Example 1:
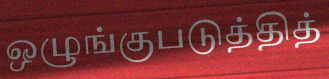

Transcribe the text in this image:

ஒழுங்குபடுத்தித்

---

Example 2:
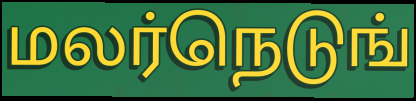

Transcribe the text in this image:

மலர்நெடுங்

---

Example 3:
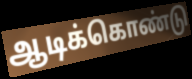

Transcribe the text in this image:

ஆடிக்கொண்டு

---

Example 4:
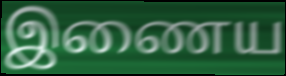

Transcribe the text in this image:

இணைய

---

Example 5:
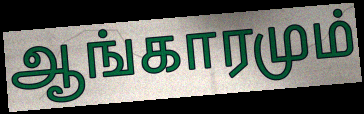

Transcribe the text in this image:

ஆங்காரமும்